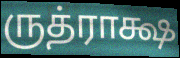
ருத்ராக்ஷ